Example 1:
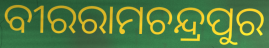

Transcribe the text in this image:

ବୀରରାମଚନ୍ଦ୍ରପୁର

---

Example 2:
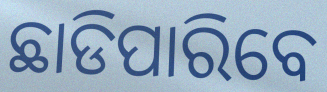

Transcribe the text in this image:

ଛାଡିପାରିବେ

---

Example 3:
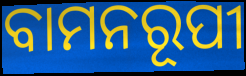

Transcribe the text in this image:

ବାମନରୂପୀ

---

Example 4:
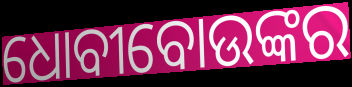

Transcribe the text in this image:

ଧୋବୀବୋଉଙ୍କର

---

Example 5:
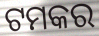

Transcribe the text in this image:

ଟମକର